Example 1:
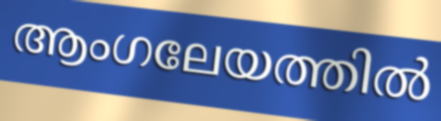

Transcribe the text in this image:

ആംഗലേയത്തിൽ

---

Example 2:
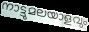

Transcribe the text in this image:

നാട്ടുമലയാളവും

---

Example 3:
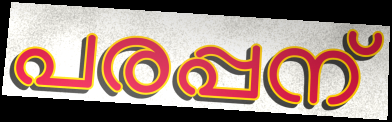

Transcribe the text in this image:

പരപ്പന്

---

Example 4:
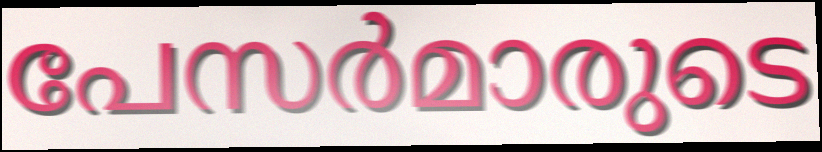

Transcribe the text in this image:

പേസർമാരുടെ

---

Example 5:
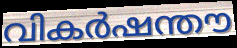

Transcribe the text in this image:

വികർഷന്തൗ